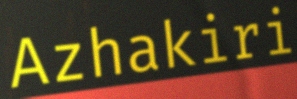
Azhakiri